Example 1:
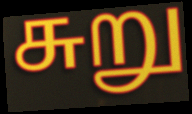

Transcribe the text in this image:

சுறு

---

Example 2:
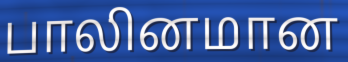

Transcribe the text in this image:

பாலினமான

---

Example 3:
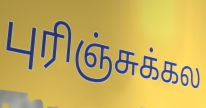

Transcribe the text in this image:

புரிஞ்சுக்கல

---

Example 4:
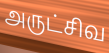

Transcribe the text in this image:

அருட்சிவ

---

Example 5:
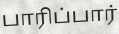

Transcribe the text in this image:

பாரிப்பார்